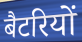
बैटरियों